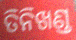
ତିନିଖଣ୍ଡ